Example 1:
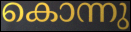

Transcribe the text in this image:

കൊന്നു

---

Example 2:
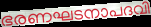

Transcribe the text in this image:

ഭരണഘടനാപദവി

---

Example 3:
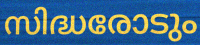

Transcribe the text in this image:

സിദ്ധരോടും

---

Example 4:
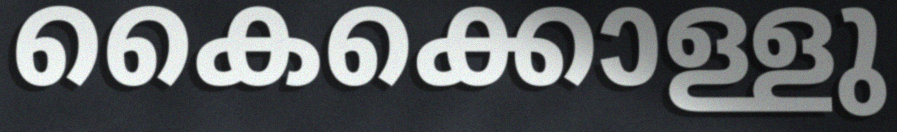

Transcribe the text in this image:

കൈക്കൊള്ളു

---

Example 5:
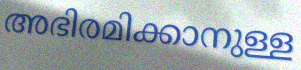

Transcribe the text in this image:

അഭിരമിക്കാനുള്ള